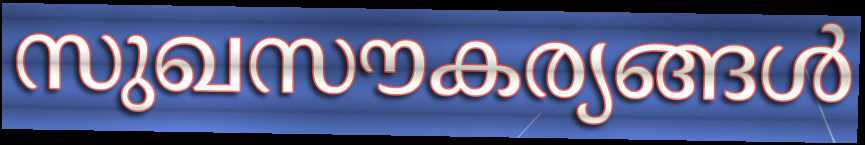
സുഖസൗകര്യങ്ങൾ